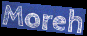
Moreh